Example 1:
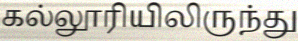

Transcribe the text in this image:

கல்லூரியிலிருந்து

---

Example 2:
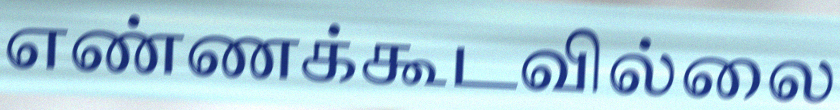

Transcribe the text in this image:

எண்ணக்கூடவில்லை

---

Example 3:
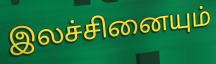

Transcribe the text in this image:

இலச்சினையும்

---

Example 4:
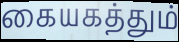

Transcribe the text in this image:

கையகத்தும்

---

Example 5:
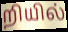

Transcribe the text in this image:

றியில்